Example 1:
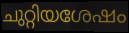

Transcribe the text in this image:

ചുറ്റിയശേഷം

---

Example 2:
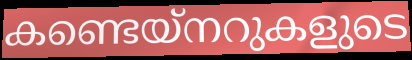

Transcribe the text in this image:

കണ്ടെയ്നറുകളുടെ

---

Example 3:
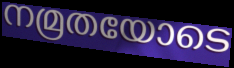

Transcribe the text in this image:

നമ്രതയോടെ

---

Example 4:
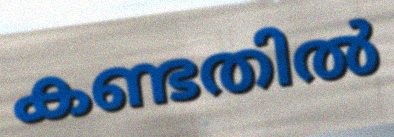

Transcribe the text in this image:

കണ്ടതിൽ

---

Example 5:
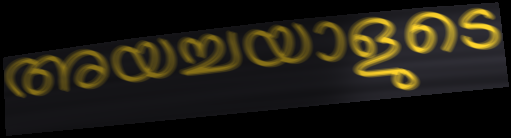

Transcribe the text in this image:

അയച്ചയാളുടെ